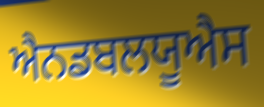
ਐਨਡਬਲਯੂਐਸ